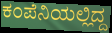
ಕಂಪೆನಿಯಲ್ಲಿದ್ದ